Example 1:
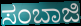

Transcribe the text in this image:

ಸಂಬಾಜಿ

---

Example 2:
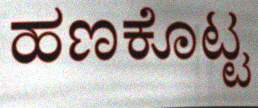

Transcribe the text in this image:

ಹಣಕೊಟ್ಟ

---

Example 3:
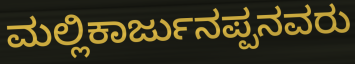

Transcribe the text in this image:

ಮಲ್ಲಿಕಾರ್ಜುನಪ್ಪನವರು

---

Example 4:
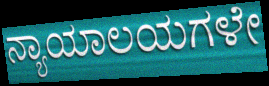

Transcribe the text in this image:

ನ್ಯಾಯಾಲಯಗಳೇ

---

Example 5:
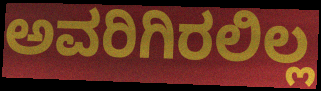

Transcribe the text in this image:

ಅವರಿಗಿರಲಿಲ್ಲ